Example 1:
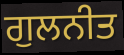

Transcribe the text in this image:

ਗੁਲਨੀਤ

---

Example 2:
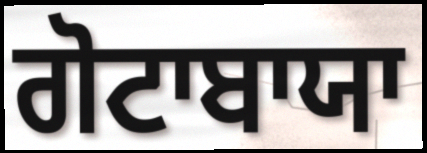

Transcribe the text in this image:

ਗੋਟਾਬਾਯਾ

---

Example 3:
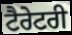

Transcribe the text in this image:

ਟੈਰੇਟਰੀ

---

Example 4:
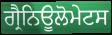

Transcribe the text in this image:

ਗ੍ਰੈਨਿਊਲੋਮੇਟਸ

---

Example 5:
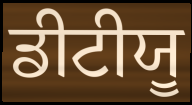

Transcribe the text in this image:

ਡੀਟੀਯੂ